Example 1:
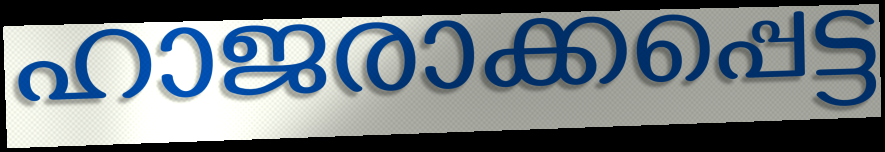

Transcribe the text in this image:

ഹാജരാക്കപ്പെട്ട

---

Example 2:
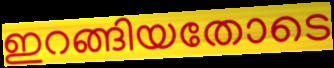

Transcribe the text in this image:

ഇറങ്ങിയതോടെ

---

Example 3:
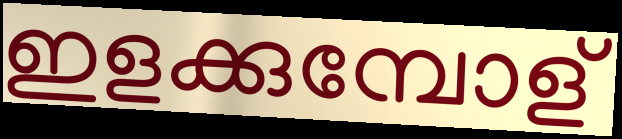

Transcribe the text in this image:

ഇളക്കുമ്പോള്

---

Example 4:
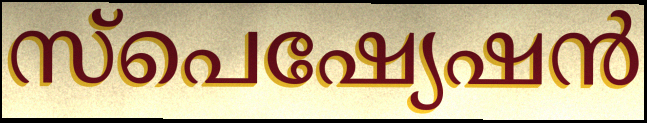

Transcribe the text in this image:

സ്പെഷ്യേഷൻ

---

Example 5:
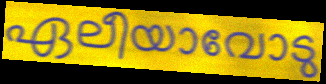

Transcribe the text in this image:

ഏലീയാവോടു